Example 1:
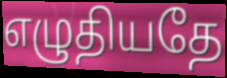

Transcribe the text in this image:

எழுதியதே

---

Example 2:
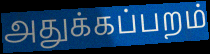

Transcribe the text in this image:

அதுக்கப்பறம்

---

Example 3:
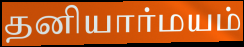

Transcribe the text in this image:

தனியார்மயம்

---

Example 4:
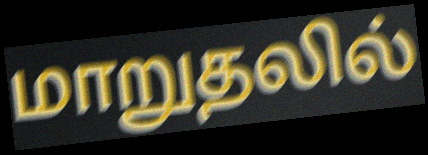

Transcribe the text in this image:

மாறுதலில்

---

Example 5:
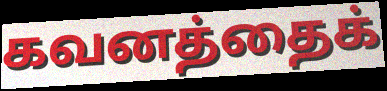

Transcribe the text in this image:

கவனத்தைக்